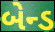
બેન્ડ